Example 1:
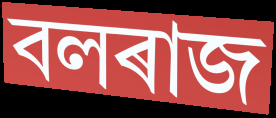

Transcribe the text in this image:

বলৰাজ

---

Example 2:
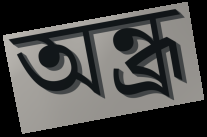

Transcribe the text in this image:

অন্ধ্ৰ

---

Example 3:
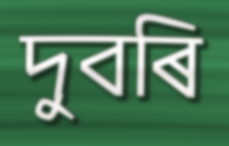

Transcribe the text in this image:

দুবৰি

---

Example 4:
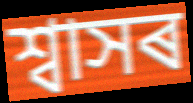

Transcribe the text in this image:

শ্বাসৰ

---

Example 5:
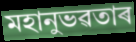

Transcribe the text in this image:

মহানুভৱতাৰ